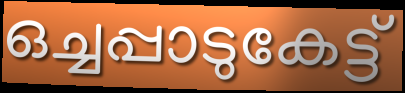
ഒച്ചപ്പാടുകേട്ട്